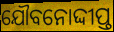
ଯୌବନୋଦ୍ଦୀପ୍ତ